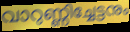
വാറുണ്ണിച്ചേട്ടനും